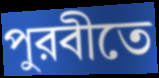
পুরবীতে